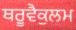
ਥਰੂਵੈਕੁਲਮ